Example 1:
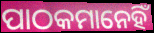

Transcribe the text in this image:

ପାଠକମାନେହିଁ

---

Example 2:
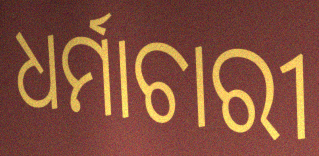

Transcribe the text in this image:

ଧର୍ମାଚାରୀ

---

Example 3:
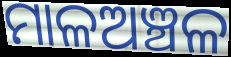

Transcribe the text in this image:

ମାଳଅଞ୍ଚଳ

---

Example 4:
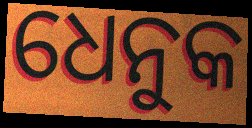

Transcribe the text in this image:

ଧେନୁକ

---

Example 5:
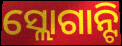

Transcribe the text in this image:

ସ୍ଲୋଗାନ୍ଟି